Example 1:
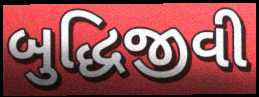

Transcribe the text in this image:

બુદ્ધિજીવી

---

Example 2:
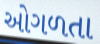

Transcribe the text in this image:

ઓગળતા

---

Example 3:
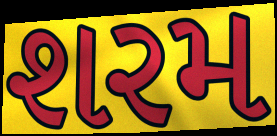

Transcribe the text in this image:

શરમ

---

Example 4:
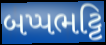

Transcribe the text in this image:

બપ્પભટ્ટિ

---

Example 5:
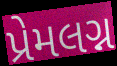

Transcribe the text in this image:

પ્રેમલગ્ન